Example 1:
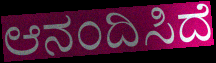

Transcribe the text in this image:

ಆನಂದಿಸಿದೆ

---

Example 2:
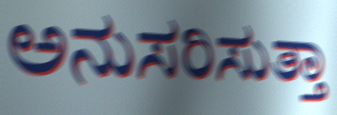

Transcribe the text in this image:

ಅನುಸರಿಸುತ್ತಾ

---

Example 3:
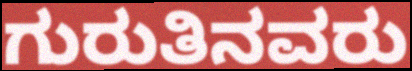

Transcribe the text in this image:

ಗುರುತಿನವರು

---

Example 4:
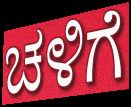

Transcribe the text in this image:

ಚಳಿಗೆ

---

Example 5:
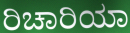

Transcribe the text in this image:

ರಿಚಾರಿಯಾ